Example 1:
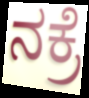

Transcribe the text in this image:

ನಕ್ರೆ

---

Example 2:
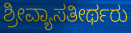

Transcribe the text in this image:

ಶ್ರೀವ್ಯಾಸತೀರ್ಥರು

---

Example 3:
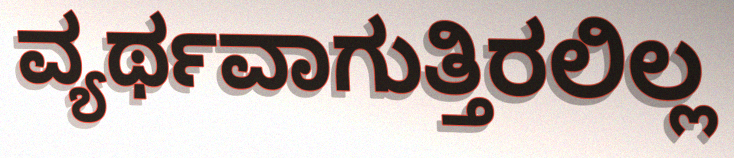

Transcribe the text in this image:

ವ್ಯರ್ಥವಾಗುತ್ತಿರಲಿಲ್ಲ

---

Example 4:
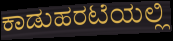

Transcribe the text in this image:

ಕಾಡುಹರಟೆಯಲ್ಲಿ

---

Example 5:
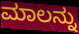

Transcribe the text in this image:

ಮಾಲನ್ನು